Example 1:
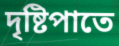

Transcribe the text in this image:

দৃষ্টিপাতে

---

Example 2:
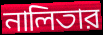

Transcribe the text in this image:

নালিতার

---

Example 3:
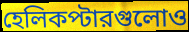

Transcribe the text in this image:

হেলিকপ্টারগুলোও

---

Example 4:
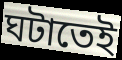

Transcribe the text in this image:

ঘটাতেই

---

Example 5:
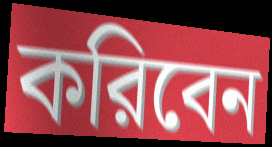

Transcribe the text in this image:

করিবেন